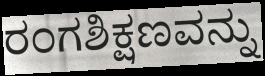
ರಂಗಶಿಕ್ಷಣವನ್ನು